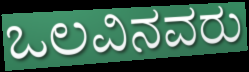
ಒಲವಿನವರು